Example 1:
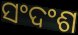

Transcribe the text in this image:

ସଂଦଂଶ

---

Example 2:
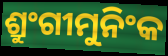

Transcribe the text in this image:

ଶ୍ରୁଂଗୀମୁନିଂକ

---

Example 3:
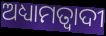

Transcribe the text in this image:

ଅଧ୍ୟାମତ୍ବାଦୀ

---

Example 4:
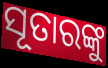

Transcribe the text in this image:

ସୂତାରଙ୍କୁ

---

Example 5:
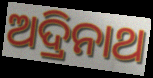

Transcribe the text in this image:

ଅଦ୍ରିନାଥ